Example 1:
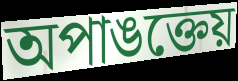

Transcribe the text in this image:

অপাঙক্তেয়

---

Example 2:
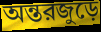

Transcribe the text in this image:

অন্তরজুড়ে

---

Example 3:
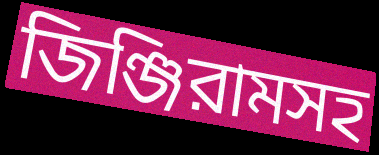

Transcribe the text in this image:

জিঞ্জিরামসহ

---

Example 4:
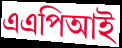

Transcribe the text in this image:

এএপিআই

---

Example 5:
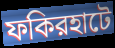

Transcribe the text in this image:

ফকিরহাটে